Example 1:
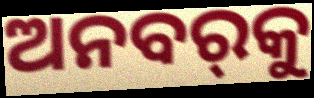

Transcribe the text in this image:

ଅନବର୍‌କୁ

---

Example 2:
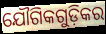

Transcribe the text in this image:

ଯୌଗିକଗୁଡ଼ିକର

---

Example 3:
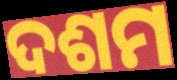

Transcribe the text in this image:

ଦଶମ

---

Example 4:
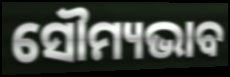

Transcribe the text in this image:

ସୌମ୍ୟଭାବ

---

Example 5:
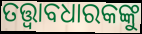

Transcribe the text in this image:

ତତ୍ତ୍ଵାବଧାରକଙ୍କୁ